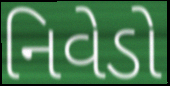
નિવેડો